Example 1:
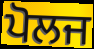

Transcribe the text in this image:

ਪੋਲਜ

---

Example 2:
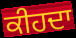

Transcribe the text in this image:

ਕੀਹਦਾ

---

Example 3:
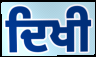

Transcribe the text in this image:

ਦਿਖੀ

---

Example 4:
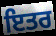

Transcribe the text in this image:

ਇਤਰ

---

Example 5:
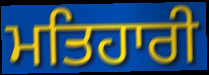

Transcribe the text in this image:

ਮਤਿਹਾਰੀ